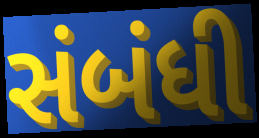
સંબંધી